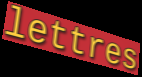
lettres